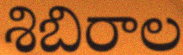
శిబిరాల